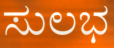
ಸುಲಭ